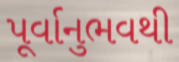
પૂર્વાનુભવથી